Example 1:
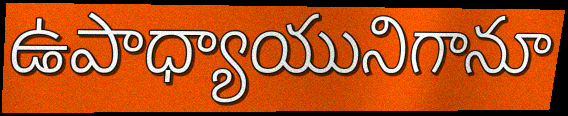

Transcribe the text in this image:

ఉపాధ్యాయునిగానూ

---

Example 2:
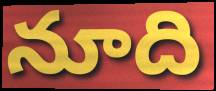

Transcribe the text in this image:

నూది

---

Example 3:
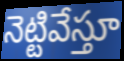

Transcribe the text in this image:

నెట్టివేస్తూ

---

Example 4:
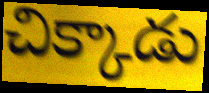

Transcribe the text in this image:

చిక్కాడు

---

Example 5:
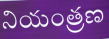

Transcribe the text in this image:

నియంత్రణ